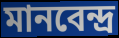
মানবেন্দ্র